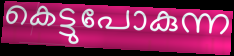
കെട്ടുപോകുന്ന